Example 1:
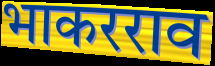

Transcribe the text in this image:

भाकरराव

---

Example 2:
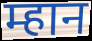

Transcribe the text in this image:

म्हान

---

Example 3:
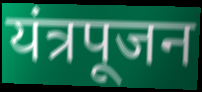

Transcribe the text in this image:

यंत्रपूजन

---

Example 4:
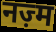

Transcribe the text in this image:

नज़्म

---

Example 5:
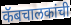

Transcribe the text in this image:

कॅबचालकांची